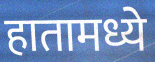
हातामध्ये